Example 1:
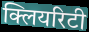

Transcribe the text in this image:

क्लियरिटी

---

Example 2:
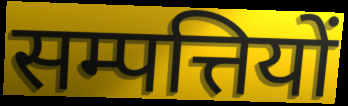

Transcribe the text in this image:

सम्पत्तियों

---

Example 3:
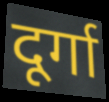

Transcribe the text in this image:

दूर्गा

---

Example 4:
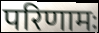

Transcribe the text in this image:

परिणामः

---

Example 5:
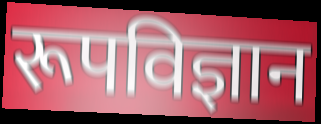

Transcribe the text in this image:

रूपविज्ञान